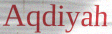
Aqdiyah